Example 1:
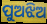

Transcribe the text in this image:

ପୁଅଝିଅ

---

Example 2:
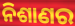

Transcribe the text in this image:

ନିଶାଣର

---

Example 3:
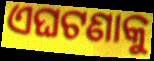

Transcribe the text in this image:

ଏଘଟଣାକୁ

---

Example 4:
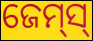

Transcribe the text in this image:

ଜେମ୍‌ସ୍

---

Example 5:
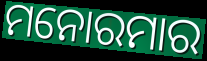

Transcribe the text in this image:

ମନୋରମାର